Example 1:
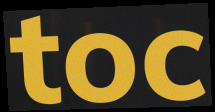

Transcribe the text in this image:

toc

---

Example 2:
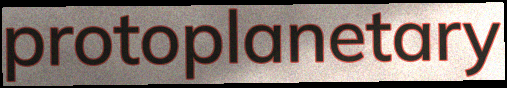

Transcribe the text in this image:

protoplanetary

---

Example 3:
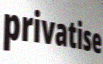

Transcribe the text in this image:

privatise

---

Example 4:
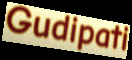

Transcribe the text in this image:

Gudipati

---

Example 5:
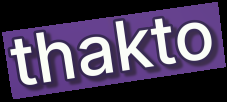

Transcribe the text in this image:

thakto